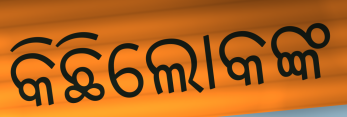
କିଛିଲୋକଙ୍କ